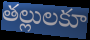
తల్లులకూ